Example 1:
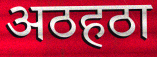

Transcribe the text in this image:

अठहठा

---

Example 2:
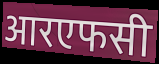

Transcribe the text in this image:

आरएफसी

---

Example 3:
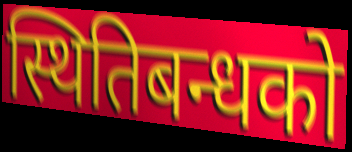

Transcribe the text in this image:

स्थितिबन्धको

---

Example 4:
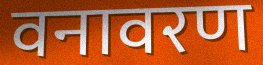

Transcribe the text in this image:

वनावरण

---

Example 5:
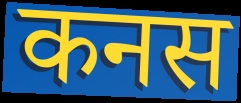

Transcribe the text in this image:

कनस